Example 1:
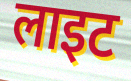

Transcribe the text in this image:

लाइट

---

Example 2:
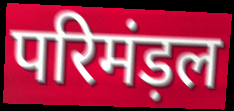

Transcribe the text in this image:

परिमंड़ल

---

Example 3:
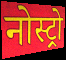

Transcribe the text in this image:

नोस्ट्रो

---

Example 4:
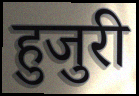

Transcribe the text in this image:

हुजुरी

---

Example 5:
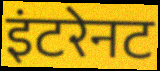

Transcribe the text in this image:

इंटरेनट